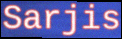
Sarjis